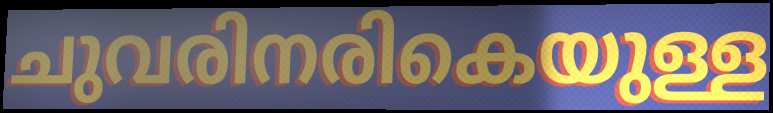
ചുവരിനരികെയുള്ള